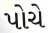
પોચે